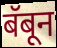
बॅबून